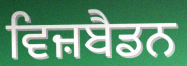
ਵਿਜ਼ਬੈਡਨ